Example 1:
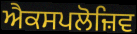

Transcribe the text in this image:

ਐਕਸਪਲੋਜ਼ਿਵ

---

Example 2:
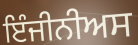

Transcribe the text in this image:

ਇੰਜੀਨੀਅਸ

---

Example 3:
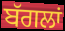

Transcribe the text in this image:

ਬੱਗਲਾਂ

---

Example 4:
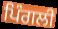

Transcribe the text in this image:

ਪਿੰਗਲੀ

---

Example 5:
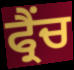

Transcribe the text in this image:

ਫ੍ਰੈਂਚ